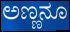
ಅಣ್ಣನೂ